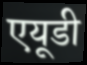
एयूडी